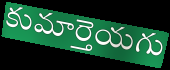
కుమార్తెయగు